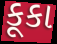
કૂકા